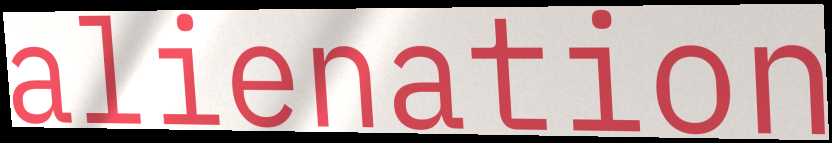
alienation